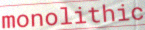
monolithic